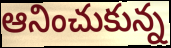
ఆనించుకున్న